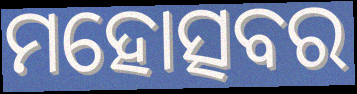
ମହୋତ୍ସବର